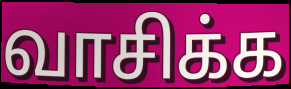
வாசிக்க